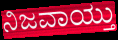
ನಿಜವಾಯ್ತು